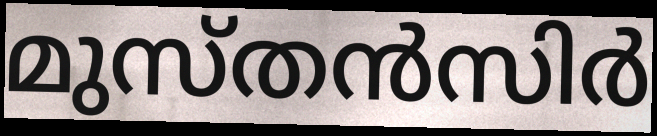
മുസ്തൻസിർ